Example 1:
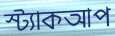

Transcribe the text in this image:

স্ট্যাকআপ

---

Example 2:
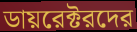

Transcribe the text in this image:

ডায়রেক্টরদের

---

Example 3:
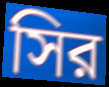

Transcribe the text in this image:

সির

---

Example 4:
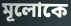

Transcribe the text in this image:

মূলোকে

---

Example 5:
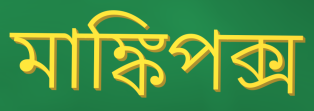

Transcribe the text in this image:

মাঙ্কিপক্স